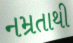
નમ્રતાથી